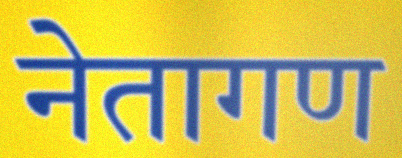
नेतागण